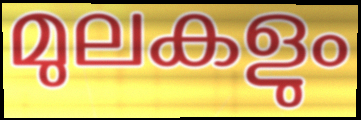
മുലകളും